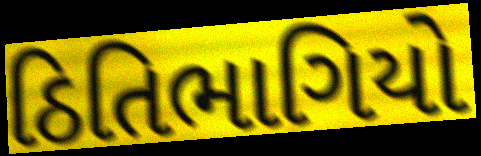
ઠિતિભાગિયો